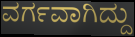
ವರ್ಗವಾಗಿದ್ದು